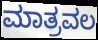
ಮಾತ್ರವಲ